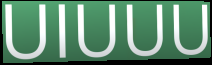
UIUUU